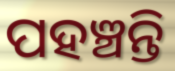
ପହଞ୍ଚନ୍ତି